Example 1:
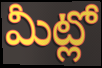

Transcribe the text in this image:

మీట్లో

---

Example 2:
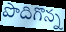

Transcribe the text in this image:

పొదిగొన్న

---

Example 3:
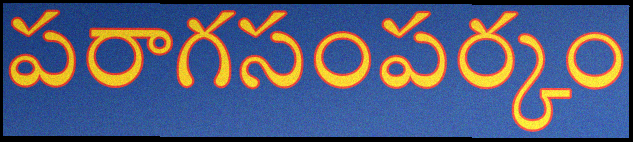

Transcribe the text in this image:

పరాగసంపర్కం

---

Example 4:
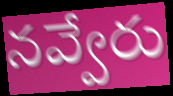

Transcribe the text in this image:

నవ్వేరు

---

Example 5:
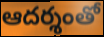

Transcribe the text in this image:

ఆదర్శంతో